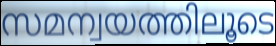
സമന്വയത്തിലൂടെ